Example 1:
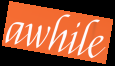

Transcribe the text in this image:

awhile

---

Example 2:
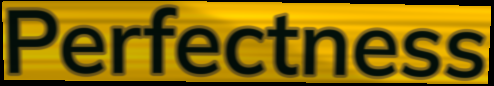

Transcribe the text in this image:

Perfectness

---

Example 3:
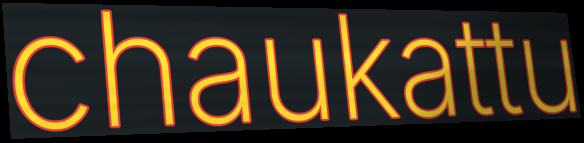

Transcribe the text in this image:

chaukattu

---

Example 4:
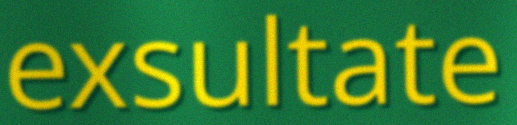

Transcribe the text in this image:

exsultate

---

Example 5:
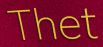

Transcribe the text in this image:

Thet